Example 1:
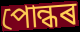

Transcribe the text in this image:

পোন্ধৰ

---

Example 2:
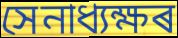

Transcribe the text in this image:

সেনাধ্যক্ষৰ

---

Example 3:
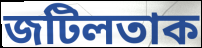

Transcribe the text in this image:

জটিলতাক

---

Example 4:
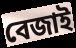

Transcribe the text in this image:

বেজাই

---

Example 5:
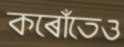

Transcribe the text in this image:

কৰোঁতেও